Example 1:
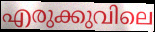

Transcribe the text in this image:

എരുക്കുവിലെ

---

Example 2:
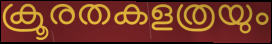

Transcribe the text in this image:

ക്രൂരതകളത്രയും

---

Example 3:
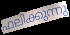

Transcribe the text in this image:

ഫലിക്കുന്നു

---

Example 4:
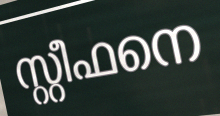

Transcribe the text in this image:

സ്റ്റീഫനെ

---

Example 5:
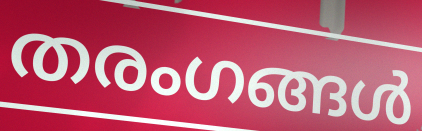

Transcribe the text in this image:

തരംഗങ്ങൾ